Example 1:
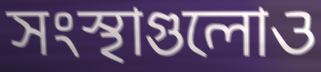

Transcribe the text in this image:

সংস্থাগুলোও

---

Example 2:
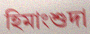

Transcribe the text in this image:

হিমাংশুদা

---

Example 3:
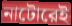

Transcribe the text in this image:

নাটোরেই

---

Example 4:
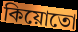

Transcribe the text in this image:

কিয়োতো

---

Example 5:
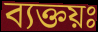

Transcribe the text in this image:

ব্যক্তয়ঃ